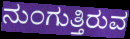
ನುಂಗುತ್ತಿರುವ